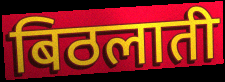
बिठलाती